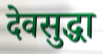
देवसुद्धा